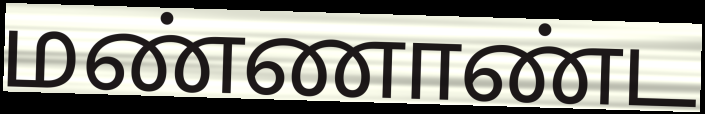
மண்ணாண்ட